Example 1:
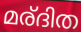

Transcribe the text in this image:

മര്ദിത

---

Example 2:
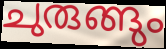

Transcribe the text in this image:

ചുരുങ്ങും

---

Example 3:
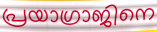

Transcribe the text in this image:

പ്രയാഗ്രാജിനെ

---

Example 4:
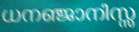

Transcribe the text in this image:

ധനഞ്ജാനിസ്സ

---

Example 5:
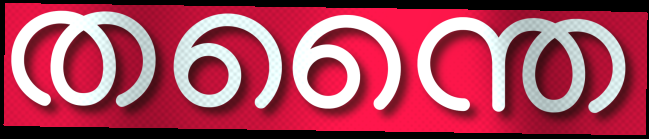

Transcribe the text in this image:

തന്തൈ